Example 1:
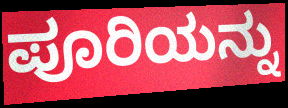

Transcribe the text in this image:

ಪೂರಿಯನ್ನು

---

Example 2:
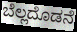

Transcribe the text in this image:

ಬೆಲ್ಲದೊಡನೆ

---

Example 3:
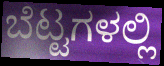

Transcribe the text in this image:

ಬೆಟ್ಟಗಳಲ್ಲಿ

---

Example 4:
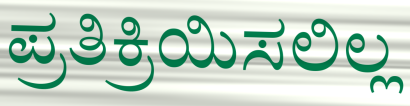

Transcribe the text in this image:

ಪ್ರತಿಕ್ರಿಯಿಸಲಿಲ್ಲ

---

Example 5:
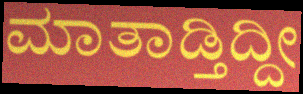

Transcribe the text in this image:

ಮಾತಾಡ್ತಿದ್ದೀ